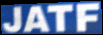
JATF